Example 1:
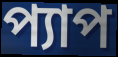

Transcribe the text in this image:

প্যাপ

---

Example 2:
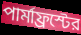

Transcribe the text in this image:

পার্মাফ্রস্টের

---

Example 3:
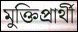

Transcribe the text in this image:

মুক্তিপ্রার্থী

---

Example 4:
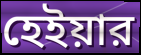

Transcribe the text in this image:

হেইয়ার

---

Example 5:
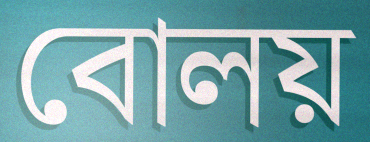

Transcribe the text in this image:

বোলয়